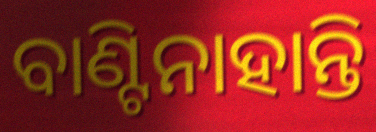
ବାଣ୍ଟିନାହାନ୍ତି